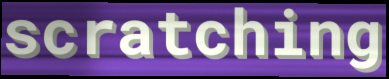
scratching